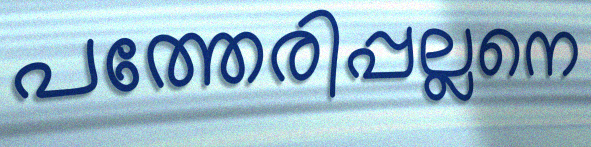
പത്തേരിപ്പല്ലനെ